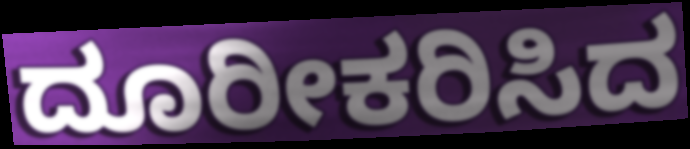
ದೂರೀಕರಿಸಿದ